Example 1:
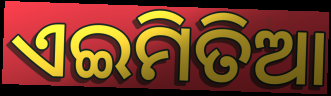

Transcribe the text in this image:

ଏଇମିତିଆ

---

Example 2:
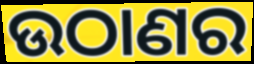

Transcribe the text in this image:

ଉଠାଣର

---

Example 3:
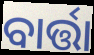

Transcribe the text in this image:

ବାର୍ତ୍ତା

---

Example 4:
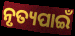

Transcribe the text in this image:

ନୃତ୍ୟପାଇଁ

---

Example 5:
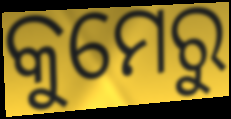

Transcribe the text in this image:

କୁମେରୁ